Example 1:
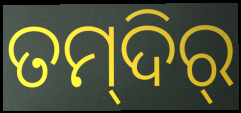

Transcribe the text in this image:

ତମ୍‍ଦିର୍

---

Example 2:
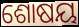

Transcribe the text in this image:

ଶୋଷୟ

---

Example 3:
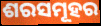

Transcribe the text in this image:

ଶରସମୂହର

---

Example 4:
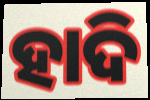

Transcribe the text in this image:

ହାଦି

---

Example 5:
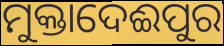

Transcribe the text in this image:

ମୁକ୍ତାଦେଈପୁର